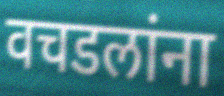
वचडलांना